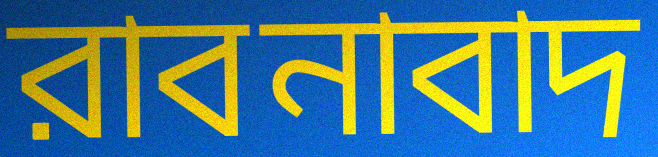
রাবনাবাদ